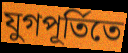
যুগপূর্তিতে